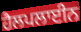
ਹੈਲਪਲਾਈਨ